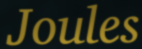
Joules